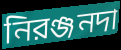
নিরঞ্জনদা